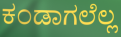
ಕಂಡಾಗಲೆಲ್ಲ